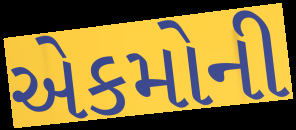
એકમોની